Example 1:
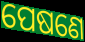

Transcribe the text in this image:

ପେଷଣେ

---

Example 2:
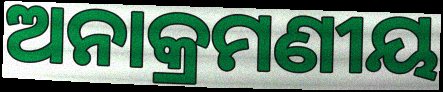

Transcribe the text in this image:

ଅନାକ୍ରମଣୀୟ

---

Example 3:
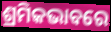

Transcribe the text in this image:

ଶ୍ରମିକଭାବରେ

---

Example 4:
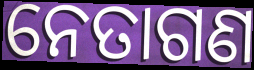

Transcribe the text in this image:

ନେତାଗଣ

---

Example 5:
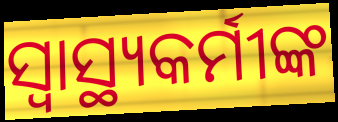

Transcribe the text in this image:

ସ୍ବାସ୍ଥ୍ୟକର୍ମୀଙ୍କ